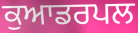
ਕੁਆਡਰਪਲ